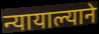
न्यायाल्याने